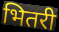
भितरी